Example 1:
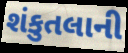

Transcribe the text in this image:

શંકુતલાની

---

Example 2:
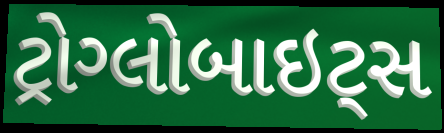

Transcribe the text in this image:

ટ્રોગ્લોબાઇટ્સ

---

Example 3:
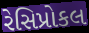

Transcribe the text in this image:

રેસિપ્રોકલ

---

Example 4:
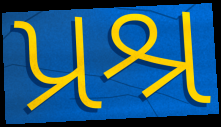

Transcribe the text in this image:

પ્રશ્ર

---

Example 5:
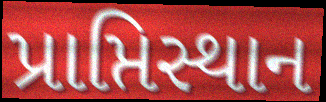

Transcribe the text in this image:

પ્રાપ્તિસ્થાન